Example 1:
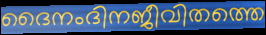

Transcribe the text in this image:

ദൈനംദിനജീവിതത്തെ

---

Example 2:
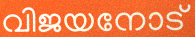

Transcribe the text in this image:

വിജയനോട്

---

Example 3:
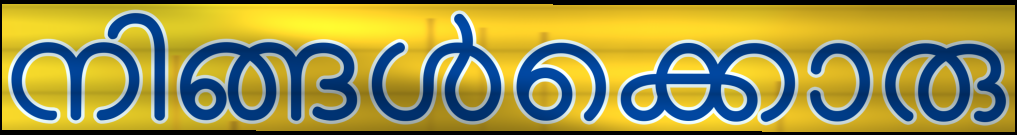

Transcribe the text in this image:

നിങ്ങൾക്കൊരു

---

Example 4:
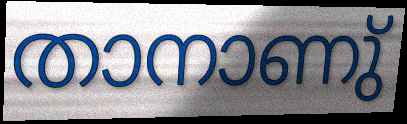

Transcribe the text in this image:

താനാണു്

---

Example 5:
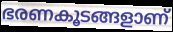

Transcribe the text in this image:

ഭരണകൂടങ്ങളാണ്